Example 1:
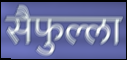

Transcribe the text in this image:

सैफुल्ला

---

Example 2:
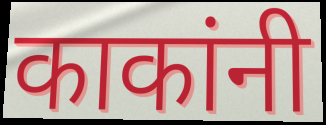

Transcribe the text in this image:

काकांनी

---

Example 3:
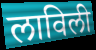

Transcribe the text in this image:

लाविली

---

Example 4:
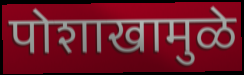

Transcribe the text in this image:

पोशाखामुळे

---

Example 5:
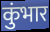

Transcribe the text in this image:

कुंभार